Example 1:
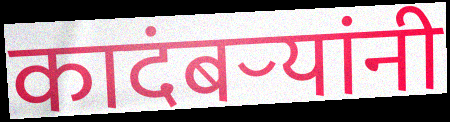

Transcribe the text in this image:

कादंबऱ्यांनी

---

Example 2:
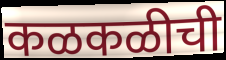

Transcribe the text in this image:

कळकळीची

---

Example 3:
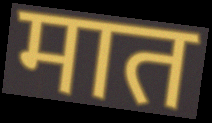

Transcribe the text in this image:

मात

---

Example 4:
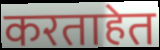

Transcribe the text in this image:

करताहेत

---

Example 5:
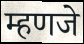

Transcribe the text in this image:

म्हणजे